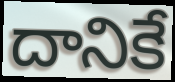
దానికే